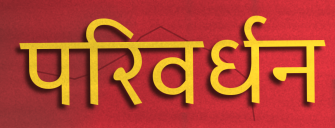
परिवर्धन